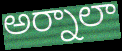
అర్నాలా